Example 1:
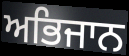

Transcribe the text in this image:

ਅਭਿਜਾਨ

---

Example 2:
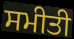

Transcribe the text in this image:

ਸਮੀਤੀ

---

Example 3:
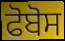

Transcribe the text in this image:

ਫੋਬੋਸ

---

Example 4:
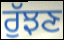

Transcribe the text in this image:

ਰੁੱਝਣ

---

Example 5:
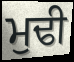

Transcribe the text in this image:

ਮੁਢੀ